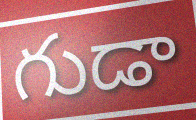
గుడా